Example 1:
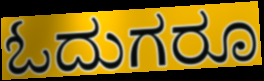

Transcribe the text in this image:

ಓದುಗರೂ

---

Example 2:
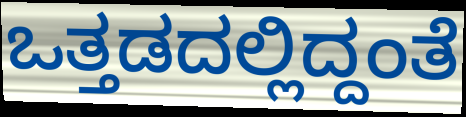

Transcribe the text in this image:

ಒತ್ತಡದಲ್ಲಿದ್ದಂತೆ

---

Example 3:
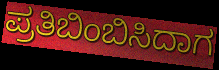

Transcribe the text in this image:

ಪ್ರತಿಬಿಂಬಿಸಿದಾಗ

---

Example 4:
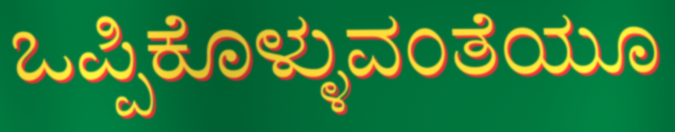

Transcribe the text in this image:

ಒಪ್ಪಿಕೊಳ್ಳುವಂತೆಯೂ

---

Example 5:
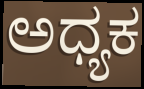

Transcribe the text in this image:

ಅಧ್ಯಕ